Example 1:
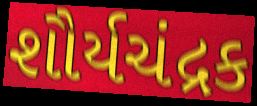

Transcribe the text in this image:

શૌર્યચંદ્રક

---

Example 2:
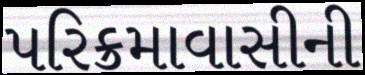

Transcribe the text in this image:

પરિક્રમાવાસીની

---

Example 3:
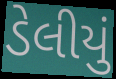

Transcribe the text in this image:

ડેલીયું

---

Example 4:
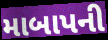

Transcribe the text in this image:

માબાપની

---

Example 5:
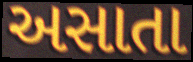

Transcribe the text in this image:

અસાતા